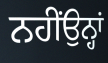
ਨਹੀਂਉਨ੍ਹਾਂ